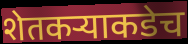
शेतकऱ्याकडेच